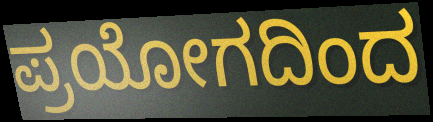
ಪ್ರಯೋಗದಿಂದ